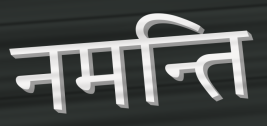
नमन्ति